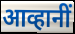
आव्हानीं